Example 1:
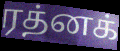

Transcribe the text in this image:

ரத்னக்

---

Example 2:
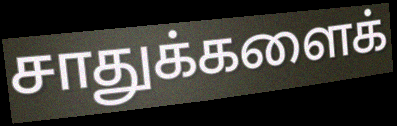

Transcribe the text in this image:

சாதுக்களைக்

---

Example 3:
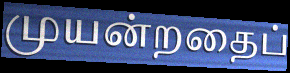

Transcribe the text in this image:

முயன்றதைப்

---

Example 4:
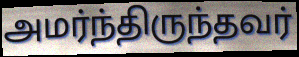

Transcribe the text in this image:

அமர்ந்திருந்தவர்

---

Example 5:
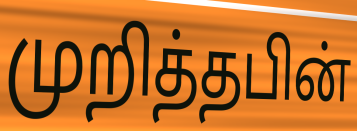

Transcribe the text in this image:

முறித்தபின்